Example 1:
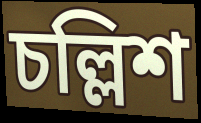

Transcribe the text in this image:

চল্লিশ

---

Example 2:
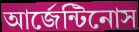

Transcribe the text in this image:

আর্জেন্টিনোস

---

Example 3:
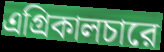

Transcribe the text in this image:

এগ্রিকালচারে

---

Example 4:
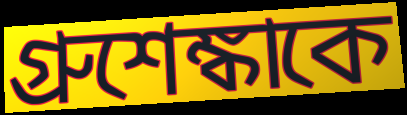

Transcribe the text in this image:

গ্রুশেঙ্কাকে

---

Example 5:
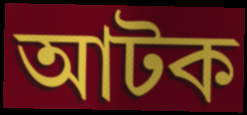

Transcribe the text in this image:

আটক